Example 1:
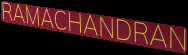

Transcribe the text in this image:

RAMACHANDRAN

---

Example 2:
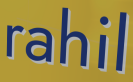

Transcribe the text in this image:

rahil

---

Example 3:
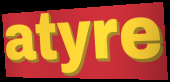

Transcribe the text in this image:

atyre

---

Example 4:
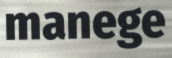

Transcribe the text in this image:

manege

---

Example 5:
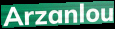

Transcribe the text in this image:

Arzanlou